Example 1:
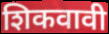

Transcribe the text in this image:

शिकवावी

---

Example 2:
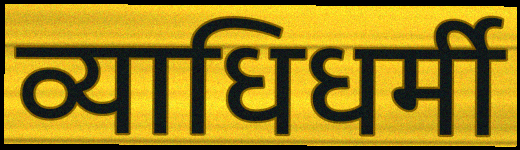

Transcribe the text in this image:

व्याधिधर्मी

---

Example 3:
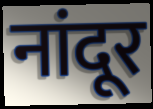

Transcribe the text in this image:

नांदूर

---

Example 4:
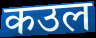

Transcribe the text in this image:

कउल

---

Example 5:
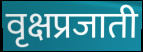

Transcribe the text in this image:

वृक्षप्रजाती